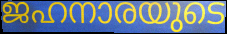
ജഹനാരയുടെ